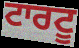
ਟਾਰਟੂ